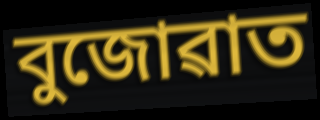
বুজোৱাত